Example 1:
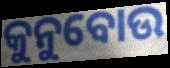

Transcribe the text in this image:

କୁନୁବୋଉ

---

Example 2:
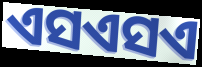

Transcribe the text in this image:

ଏସଏସଏ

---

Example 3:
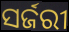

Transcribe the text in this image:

ସର୍ଜରୀ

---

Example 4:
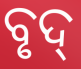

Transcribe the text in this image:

ବୃଦ୍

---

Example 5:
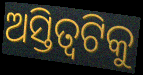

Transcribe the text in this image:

ଅସ୍ତିତ୍ୱଟିକୁ